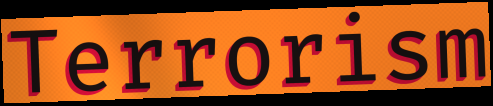
Terrorism